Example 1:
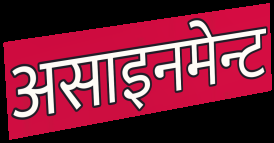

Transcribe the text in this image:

असाइनमेन्ट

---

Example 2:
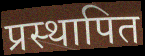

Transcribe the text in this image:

प्रस्थापित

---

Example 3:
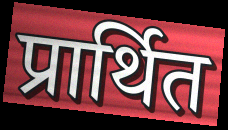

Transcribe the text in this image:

प्रार्थित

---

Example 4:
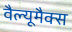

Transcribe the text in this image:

वैल्यूमैक्स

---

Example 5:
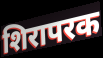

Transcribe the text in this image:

शिरापरक